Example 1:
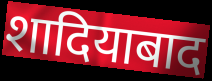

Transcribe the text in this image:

शादियाबाद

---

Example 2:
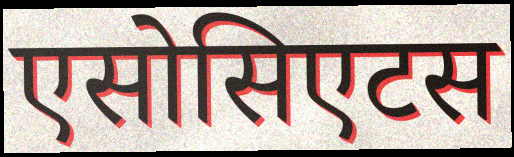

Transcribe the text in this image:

एसोसिएटस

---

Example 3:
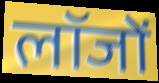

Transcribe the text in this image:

लॉजों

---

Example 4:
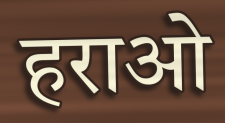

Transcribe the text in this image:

हराओ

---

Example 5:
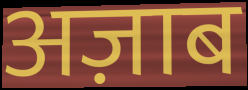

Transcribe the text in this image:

अज़ाब